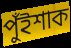
পুঁইশাক